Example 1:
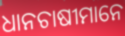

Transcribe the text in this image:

ଧାନଚାଷୀମାନେ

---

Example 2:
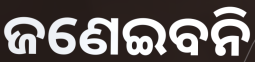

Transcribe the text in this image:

ଜଣେଇବନି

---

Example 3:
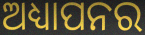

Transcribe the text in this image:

ଅଧ୍ୟାପନର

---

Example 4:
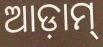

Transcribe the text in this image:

ଆଡ଼ାମ୍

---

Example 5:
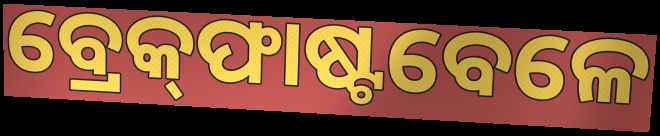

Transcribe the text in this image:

ବ୍ରେକ୍‌ଫାଷ୍ଟବେଳେ